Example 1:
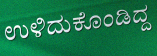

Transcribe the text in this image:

ಉಳಿದುಕೊಂಡಿದ್ದ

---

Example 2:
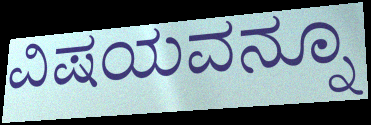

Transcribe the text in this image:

ವಿಷಯವನ್ನೂ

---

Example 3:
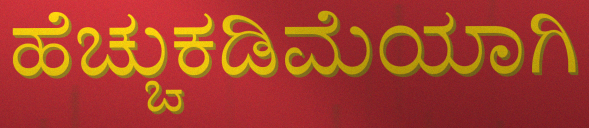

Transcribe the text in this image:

ಹೆಚ್ಚುಕಡಿಮೆಯಾಗಿ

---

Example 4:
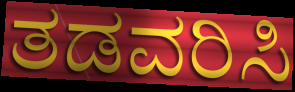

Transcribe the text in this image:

ತಡವರಿಸಿ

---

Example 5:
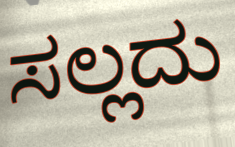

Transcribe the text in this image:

ಸಲ್ಲದು